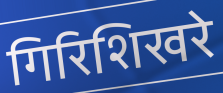
गिरिशिखरे